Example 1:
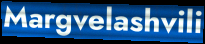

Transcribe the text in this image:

Margvelashvili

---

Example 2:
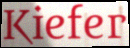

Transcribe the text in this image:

Kiefer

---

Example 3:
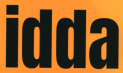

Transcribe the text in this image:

idda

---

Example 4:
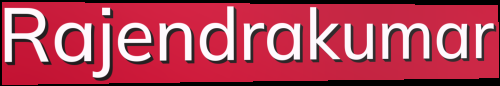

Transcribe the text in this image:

Rajendrakumar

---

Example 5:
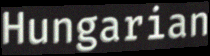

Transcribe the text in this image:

Hungarian